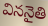
విననైతి